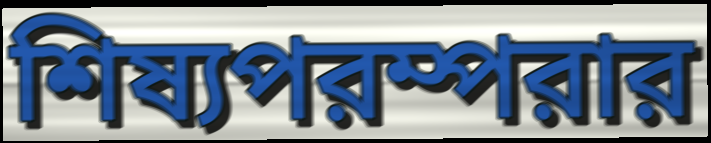
শিষ্যপরম্পরার